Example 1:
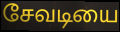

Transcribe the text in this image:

சேவடியை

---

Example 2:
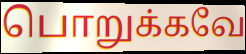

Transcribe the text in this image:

பொறுக்கவே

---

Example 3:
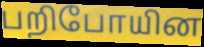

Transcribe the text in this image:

பறிபோயின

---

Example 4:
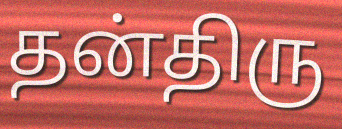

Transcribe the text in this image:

தன்திரு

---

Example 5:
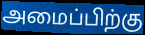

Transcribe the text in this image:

அமைப்பிற்கு